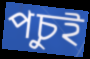
পচুই